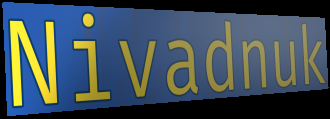
Nivadnuk